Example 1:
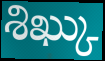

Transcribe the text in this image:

శిఖ్కు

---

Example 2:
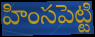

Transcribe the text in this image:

హింసపెట్టి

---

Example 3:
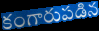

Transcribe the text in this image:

కంగారుపడిన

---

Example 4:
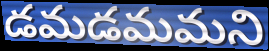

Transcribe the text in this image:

డమడమమని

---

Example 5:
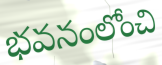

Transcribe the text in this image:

భవనంలోంచి